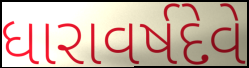
ધારાવર્ષદેવે